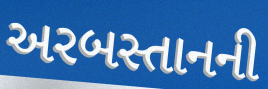
અરબસ્તાનની